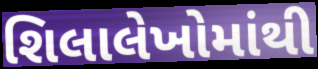
શિલાલેખોમાંથી